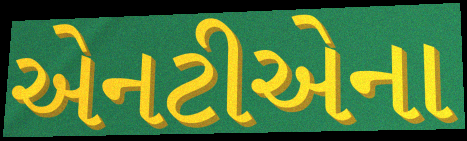
એનટીએના